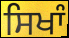
ਸਿਖਾੰ